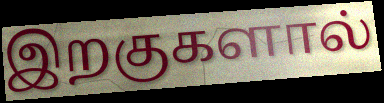
இறகுகளால்